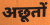
अछूतों